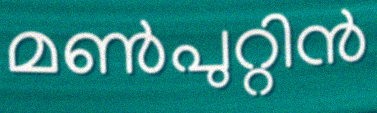
മൺപുറ്റിൻ